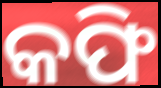
କଫି